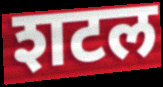
शटल